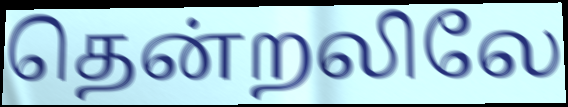
தென்றலிலே